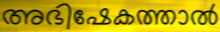
അഭിഷേകത്താൽ